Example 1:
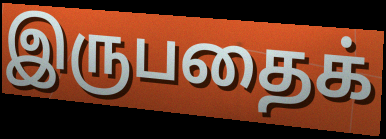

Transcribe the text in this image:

இருபதைக்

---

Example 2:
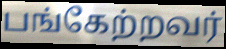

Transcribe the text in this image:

பங்கேற்றவர்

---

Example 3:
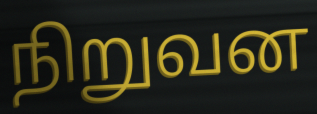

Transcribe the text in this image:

நிறுவன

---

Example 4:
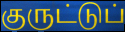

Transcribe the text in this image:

குருட்டுப்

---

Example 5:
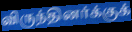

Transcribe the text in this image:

விருந்தினர்க்குக்